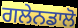
ਗਲੇਨਡਾਲੋ